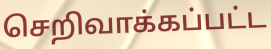
செறிவாக்கப்பட்ட